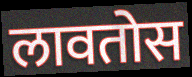
लावतोस